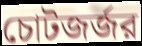
চোটজর্জর